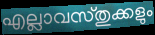
എല്ലാവസ്തുക്കളും